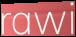
rawi